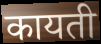
कायती